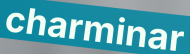
charminar